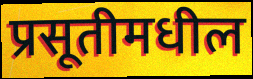
प्रसूतीमधील